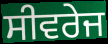
ਸੀਵਰੇਜ